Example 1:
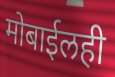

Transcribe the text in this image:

मोबाईलही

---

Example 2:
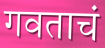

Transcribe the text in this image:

गवताचं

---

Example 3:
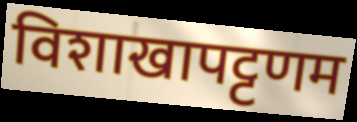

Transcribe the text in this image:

विशाखापट्टणम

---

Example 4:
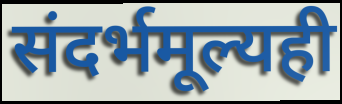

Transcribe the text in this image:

संदर्भमूल्यही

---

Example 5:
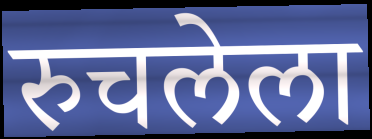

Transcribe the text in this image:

रुचलेला